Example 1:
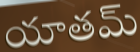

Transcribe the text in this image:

యాతమ్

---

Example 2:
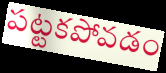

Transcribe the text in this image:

పట్టకపోవడం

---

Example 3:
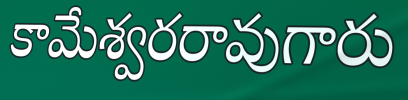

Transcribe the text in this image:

కామేశ్వరరావుగారు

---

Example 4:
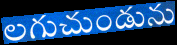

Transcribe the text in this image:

లగుచుండును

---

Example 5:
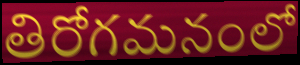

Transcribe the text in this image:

తిరోగమనంలో